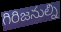
గిరిజనుల్ని